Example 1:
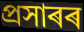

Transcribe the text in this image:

প্ৰসাৰৰ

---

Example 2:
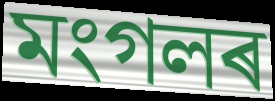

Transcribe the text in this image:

মংগলৰ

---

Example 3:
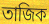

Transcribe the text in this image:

তাজিক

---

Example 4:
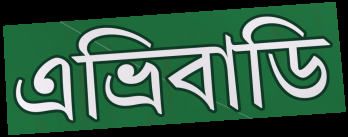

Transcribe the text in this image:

এভ্ৰিবাডি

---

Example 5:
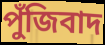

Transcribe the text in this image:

পুঁজিবাদ